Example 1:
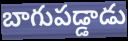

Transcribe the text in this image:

బాగుపడ్డాడు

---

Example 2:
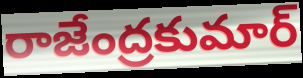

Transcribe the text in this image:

రాజేంద్రకుమార్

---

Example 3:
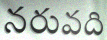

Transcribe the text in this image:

నరువది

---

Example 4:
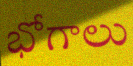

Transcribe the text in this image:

భోగాలు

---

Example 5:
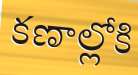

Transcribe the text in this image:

కణాల్లోకి